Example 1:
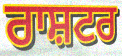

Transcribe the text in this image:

ਰਾਸ਼ਟਰ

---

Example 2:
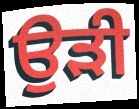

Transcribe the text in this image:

ਉਡ਼ੀ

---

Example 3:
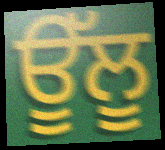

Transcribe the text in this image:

ਊੱਲੂ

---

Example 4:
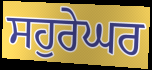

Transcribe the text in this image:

ਸਹੁਰੇਘਰ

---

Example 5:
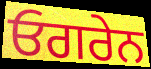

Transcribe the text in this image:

ਓਗਰੇਨ